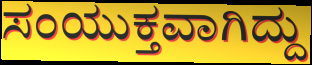
ಸಂಯುಕ್ತವಾಗಿದ್ದು